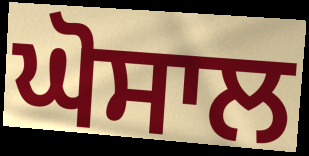
ਘੋਸਾਲ